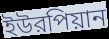
ইউরপিয়ান